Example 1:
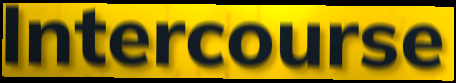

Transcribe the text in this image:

Intercourse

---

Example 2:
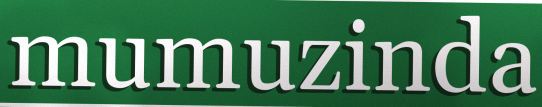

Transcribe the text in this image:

mumuzinda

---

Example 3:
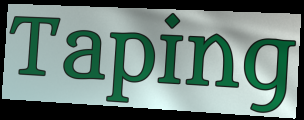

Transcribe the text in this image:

Taping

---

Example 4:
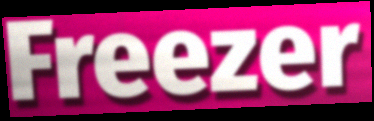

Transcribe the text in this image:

Freezer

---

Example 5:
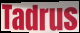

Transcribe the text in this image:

Tadrus